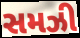
સમઝી